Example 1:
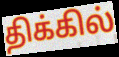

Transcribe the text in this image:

திக்கில்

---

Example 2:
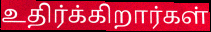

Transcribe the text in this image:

உதிர்க்கிறார்கள்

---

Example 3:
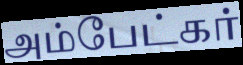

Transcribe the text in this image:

அம்பேட்கர்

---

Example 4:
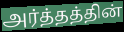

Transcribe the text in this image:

அர்த்தத்தின்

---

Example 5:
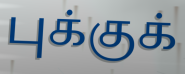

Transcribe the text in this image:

புக்குக்